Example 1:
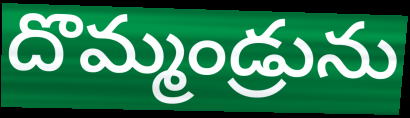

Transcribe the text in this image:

దొమ్మండ్రును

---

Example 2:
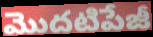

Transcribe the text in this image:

మొదటిపేజీ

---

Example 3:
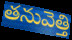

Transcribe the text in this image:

తనువెత్తి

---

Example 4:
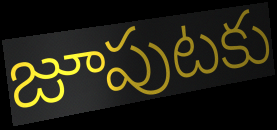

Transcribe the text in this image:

జూపుటకు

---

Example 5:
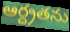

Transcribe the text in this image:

ఆర్ద్రతను